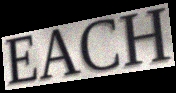
EACH